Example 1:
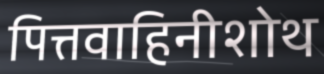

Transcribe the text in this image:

पित्तवाहिनीशोथ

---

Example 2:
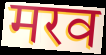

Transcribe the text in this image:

मरव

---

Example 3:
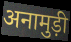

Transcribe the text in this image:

अनामुड़ी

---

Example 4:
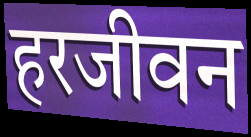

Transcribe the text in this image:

हरजीवन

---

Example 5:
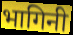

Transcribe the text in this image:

भागिनी